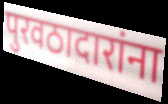
पुरवठादारांना